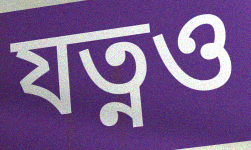
যত্নও